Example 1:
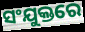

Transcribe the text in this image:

ସଂଯୁକ୍ତରେ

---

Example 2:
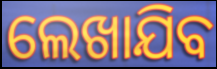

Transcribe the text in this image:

ଲେଖାଯିବ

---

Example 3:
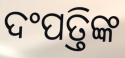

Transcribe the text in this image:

ଦଂପତ୍ତିଙ୍କ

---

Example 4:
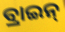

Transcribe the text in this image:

ବ୍ରାଇନ୍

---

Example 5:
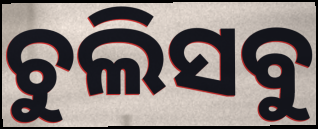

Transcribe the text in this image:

ଚୁଲିସବୁ